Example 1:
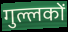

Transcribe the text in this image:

गुल्लकों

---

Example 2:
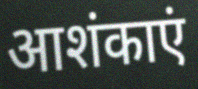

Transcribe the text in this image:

आशंकाएं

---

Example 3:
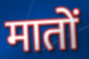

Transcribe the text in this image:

मातों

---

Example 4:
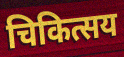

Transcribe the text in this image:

चिकित्सय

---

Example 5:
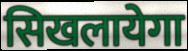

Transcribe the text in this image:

सिखलायेगा